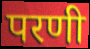
परणी